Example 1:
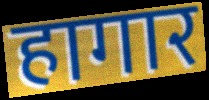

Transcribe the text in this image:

हागार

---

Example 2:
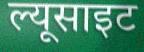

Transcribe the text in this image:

ल्यूसाइट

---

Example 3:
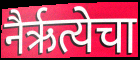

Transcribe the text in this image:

नैर्ऋत्येचा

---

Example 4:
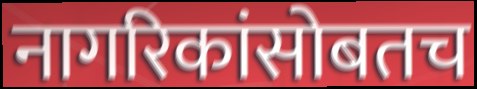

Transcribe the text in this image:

नागरिकांसोबतच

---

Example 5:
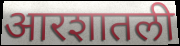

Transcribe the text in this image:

आरशातली